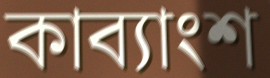
কাব্যাংশ